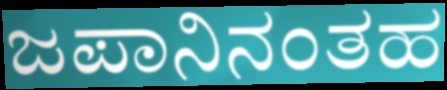
ಜಪಾನಿನಂತಹ